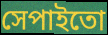
সেপাইতো